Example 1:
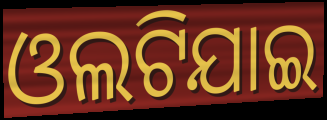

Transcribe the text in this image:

ଓଲଟିଯାଇ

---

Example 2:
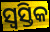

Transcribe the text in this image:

ସ୍ୱସ୍ତିକ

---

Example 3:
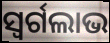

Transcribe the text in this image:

ସ୍ୱର୍ଗଲାଭ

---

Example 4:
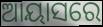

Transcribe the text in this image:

ଆୟାସରେ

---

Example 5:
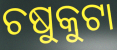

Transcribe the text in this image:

ଚଷୁକୁଟା